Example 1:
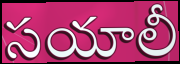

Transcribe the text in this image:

సయాలీ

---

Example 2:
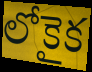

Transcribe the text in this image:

లోకైక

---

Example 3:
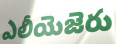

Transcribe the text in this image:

ఎలీయెజెరు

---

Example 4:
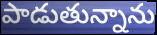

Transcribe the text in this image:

పాడుతున్నాను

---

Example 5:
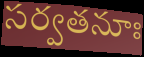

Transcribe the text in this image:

సర్వతనూః